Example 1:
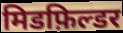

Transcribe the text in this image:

मिडफ़िल्डर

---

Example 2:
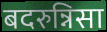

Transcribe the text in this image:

बदरुन्निसा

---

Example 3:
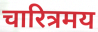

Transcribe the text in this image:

चारित्रमय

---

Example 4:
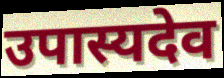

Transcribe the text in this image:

उपास्यदेव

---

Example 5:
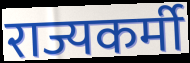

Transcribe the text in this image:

राज्यकर्मी